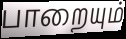
பாறையும்